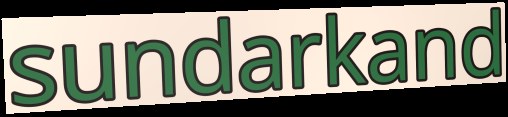
sundarkand